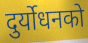
दुर्योधनको